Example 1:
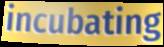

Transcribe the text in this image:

incubating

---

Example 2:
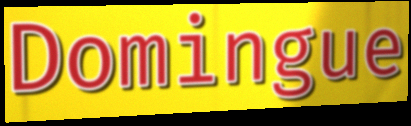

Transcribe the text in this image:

Domingue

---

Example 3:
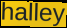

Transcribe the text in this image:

halley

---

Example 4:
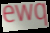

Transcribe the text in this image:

ewq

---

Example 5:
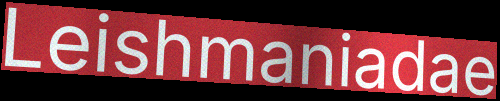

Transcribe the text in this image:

Leishmaniadae